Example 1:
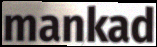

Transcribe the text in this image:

mankad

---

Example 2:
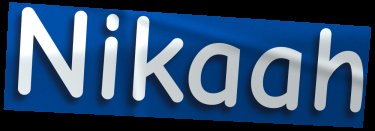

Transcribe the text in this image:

Nikaah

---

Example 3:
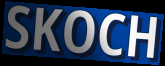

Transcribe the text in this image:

SKOCH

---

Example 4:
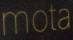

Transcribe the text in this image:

mota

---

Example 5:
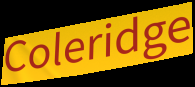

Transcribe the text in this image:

Coleridge